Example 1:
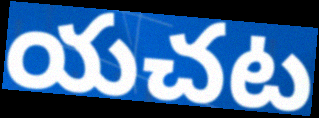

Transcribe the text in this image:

యచట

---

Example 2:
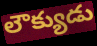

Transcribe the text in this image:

లౌక్యుడు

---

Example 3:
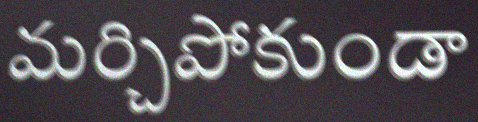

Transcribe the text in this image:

మర్చిపోకుండా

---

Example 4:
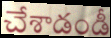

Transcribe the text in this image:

చేశాడండీ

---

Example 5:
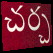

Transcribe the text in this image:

చర్చ